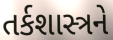
તર્કશાસ્ત્રને